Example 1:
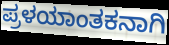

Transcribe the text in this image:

ಪ್ರಳಯಾಂತಕನಾಗಿ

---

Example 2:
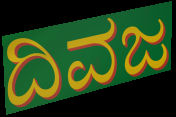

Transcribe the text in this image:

ದಿವಜ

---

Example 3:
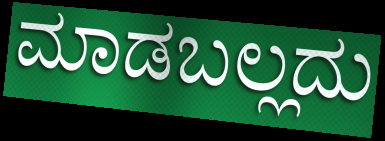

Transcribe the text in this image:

ಮಾಡಬಲ್ಲದು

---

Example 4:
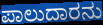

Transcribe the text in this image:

ಪಾಲುದಾರನು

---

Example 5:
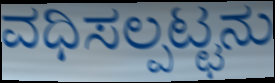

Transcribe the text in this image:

ವಧಿಸಲ್ಪಟ್ಟನು